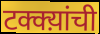
टक्क्य़ांची